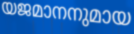
യജമാനനുമായ